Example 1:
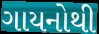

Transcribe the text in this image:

ગાયનોથી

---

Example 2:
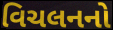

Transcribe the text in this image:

વિચલનનો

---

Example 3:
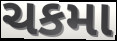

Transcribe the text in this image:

ચકમા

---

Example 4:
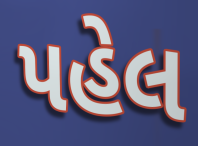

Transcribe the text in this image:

પહેલ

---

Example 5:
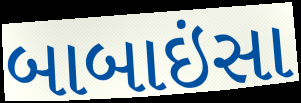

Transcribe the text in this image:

બાબાઇંસા